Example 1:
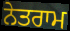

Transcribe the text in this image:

ਨੇਤਰਾਮ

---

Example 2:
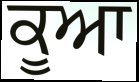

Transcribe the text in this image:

ਕੂਆ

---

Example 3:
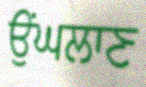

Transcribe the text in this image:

ਉਂਘਲਾਣ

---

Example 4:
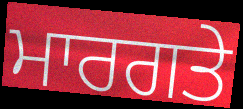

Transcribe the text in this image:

ਮਾਰਗਤੇ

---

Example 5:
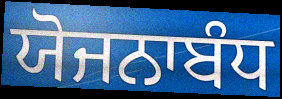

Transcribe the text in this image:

ਯੋਜਨਾਬੰਧ